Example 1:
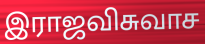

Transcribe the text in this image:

இராஜவிசுவாச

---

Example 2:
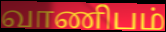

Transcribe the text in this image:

வாணிபம்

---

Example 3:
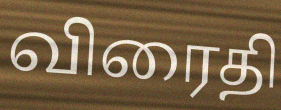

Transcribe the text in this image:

விரைதி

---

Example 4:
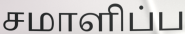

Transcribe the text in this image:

சமாளிப்ப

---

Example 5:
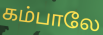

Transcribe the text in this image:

கம்பாலே